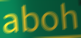
aboh